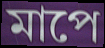
মাপে